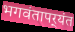
भगवंतापर्यंत